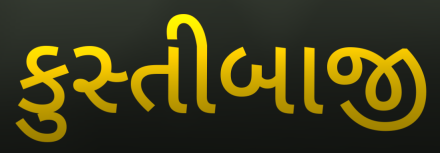
કુસ્તીબાજી